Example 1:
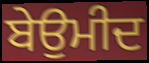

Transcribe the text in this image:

ਬੇਉਮੀਦ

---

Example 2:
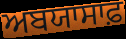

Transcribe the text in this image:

ਅਬਯਾਸਾਫ਼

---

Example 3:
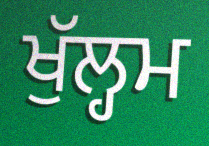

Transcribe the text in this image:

ਖੁੱਲ੍ਹਮ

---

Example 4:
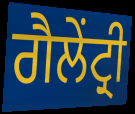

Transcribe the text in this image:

ਗੈਲੇਂਟ੍ਰੀ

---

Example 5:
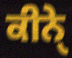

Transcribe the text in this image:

ਕੀਨੇੑ